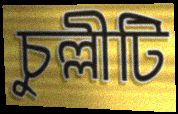
চুল্লীটি